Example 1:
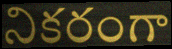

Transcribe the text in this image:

నికరంగా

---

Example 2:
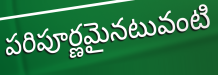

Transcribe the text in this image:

పరిపూర్ణమైనటువంటి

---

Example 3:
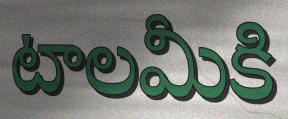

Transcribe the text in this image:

టాలమీకి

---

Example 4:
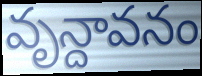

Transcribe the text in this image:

వృన్దావనం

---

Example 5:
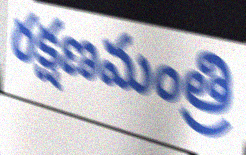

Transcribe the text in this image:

రక్షణమంత్రి